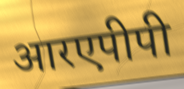
आरएपीपी